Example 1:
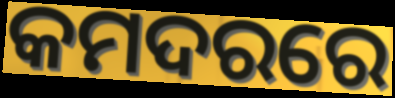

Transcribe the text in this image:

କମଦରରେ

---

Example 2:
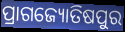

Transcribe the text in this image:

ପ୍ରାଗଜ୍ୟୋତିଷପୁର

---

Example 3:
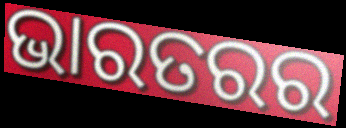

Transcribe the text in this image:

ଭାରତରର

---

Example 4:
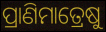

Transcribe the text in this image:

ପ୍ରାଣିମାତ୍ରେଷୁ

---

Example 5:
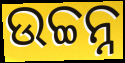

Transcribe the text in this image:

ଉଚ୍ଚନ୍ନ